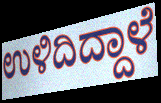
ಉಳಿದಿದ್ದಾಳೆ